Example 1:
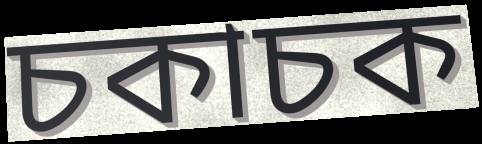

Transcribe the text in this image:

চকাচক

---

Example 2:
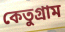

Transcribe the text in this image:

কেতুগ্রাম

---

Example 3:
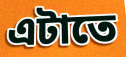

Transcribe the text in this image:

এটাতে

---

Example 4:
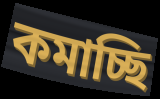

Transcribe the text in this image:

কমাচ্ছি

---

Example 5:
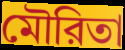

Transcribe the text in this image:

মৌরিতা